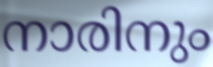
നാരിനും